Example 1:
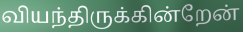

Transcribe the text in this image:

வியந்திருக்கின்றேன்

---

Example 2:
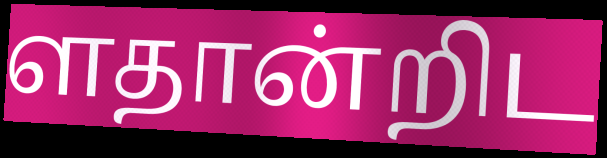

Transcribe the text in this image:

ளதான்றிட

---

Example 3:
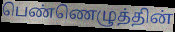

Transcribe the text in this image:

பெண்ணெழுத்தின்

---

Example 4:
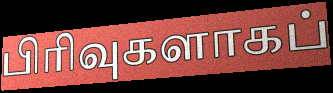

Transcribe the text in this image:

பிரிவுகளாகப்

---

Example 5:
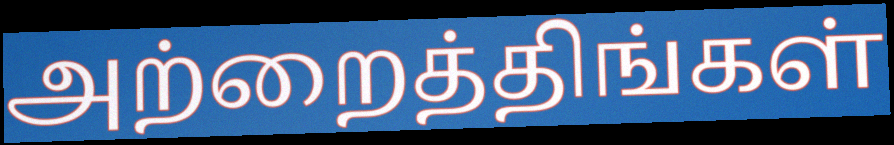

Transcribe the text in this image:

அற்றைத்திங்கள்